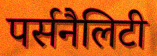
पर्सनैलिटी